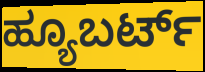
ಹ್ಯೂಬರ್ಟ್